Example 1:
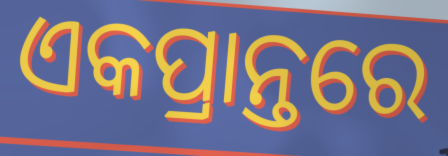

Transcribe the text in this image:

ଏକପ୍ରାନ୍ତରେ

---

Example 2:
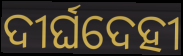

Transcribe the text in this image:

ଦୀର୍ଘଦେହୀ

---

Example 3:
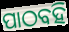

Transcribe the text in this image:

ପାଠବହି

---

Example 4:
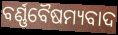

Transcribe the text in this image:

ବର୍ଣ୍ଣବୈଷମ୍ୟବାଦ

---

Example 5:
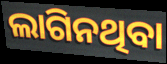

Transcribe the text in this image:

ଲାଗିନଥିବା